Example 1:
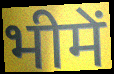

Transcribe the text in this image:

भीमें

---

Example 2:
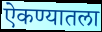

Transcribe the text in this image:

ऐकण्यातला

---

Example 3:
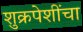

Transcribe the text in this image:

शुक्रपेशींचा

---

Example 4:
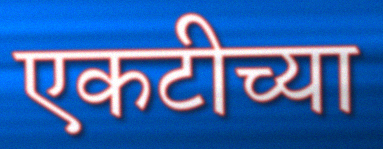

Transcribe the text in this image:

एकटीच्या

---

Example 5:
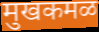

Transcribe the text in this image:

मुखकमळ